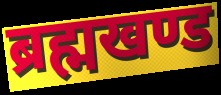
ब्रह्मखण्ड